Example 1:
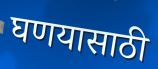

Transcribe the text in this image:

घणयासाठी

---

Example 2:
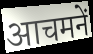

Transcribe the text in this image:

आचमनें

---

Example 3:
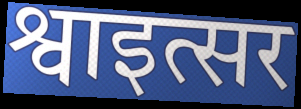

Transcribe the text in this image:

श्वाइत्सर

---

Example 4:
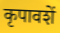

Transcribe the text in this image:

कृपावशें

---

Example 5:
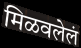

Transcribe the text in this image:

मिळवलेलं